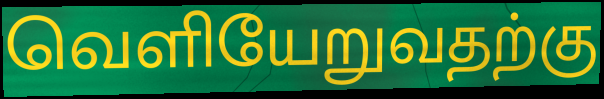
வெளியேறுவதற்கு